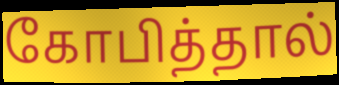
கோபித்தால்